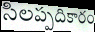
సిలప్పదికారం